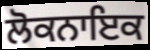
ਲੋਕਨਾਇਕ